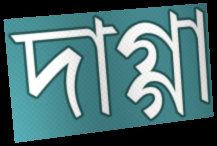
দাগ্গা